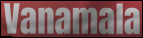
Vanamala